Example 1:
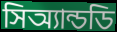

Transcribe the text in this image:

সিঅ্যান্ডডি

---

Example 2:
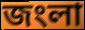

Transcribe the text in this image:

জংলা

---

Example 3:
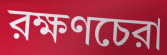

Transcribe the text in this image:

রক্ষণচেরা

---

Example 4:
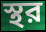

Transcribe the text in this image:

স্থর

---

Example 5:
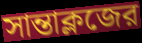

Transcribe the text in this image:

সান্তাক্লজের